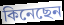
কিনেছেন